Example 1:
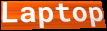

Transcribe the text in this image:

Laptop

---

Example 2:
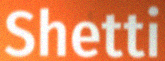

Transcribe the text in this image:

Shetti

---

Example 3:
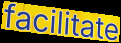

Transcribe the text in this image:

facilitate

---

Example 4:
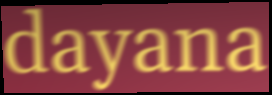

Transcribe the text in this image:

dayana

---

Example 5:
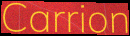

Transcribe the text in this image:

Carrion